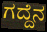
ಗದ್ದೆನ